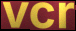
vcr